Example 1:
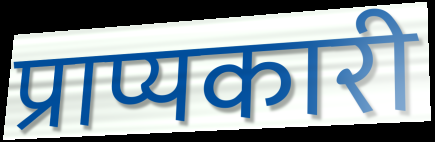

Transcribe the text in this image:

प्राप्यकारी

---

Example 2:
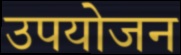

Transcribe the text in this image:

उपयोजन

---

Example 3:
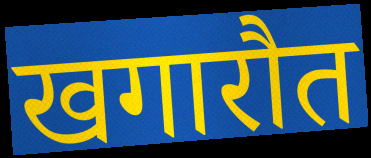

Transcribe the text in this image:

खगारौत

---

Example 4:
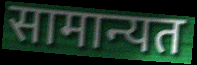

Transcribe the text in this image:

सामान्यत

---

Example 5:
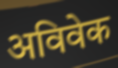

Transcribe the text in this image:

अविवेक